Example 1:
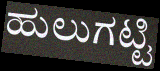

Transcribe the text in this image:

ಹುಲುಗಟ್ಟಿ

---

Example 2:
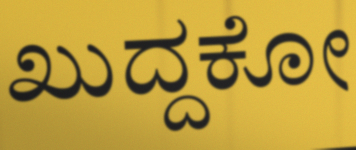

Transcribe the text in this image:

ಖುದ್ದಕೋ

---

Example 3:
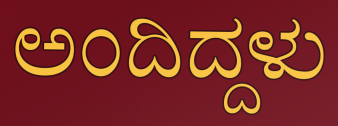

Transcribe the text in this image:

ಅಂದಿದ್ದಳು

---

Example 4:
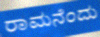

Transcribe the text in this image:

ರಾಮನೆಂದು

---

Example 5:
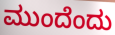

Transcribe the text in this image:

ಮುಂದೆಂದು